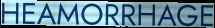
HEAMORRHAGE